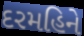
દરમહિને